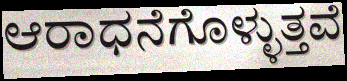
ಆರಾಧನೆಗೊಳ್ಳುತ್ತವೆ